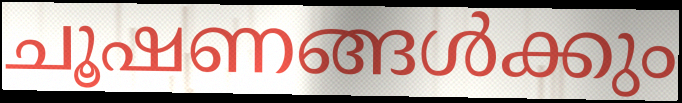
ചൂഷണങ്ങൾക്കും